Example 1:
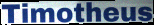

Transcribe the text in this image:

Timotheus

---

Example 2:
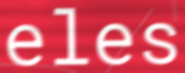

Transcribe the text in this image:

eles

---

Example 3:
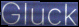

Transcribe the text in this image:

Gluck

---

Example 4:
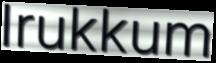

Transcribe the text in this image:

Irukkum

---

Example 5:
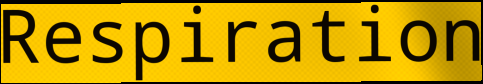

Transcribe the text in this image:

Respiration